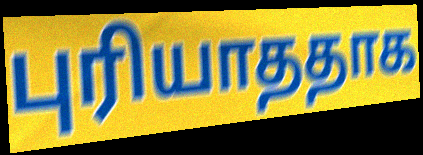
புரியாததாக